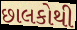
છાલકોથી